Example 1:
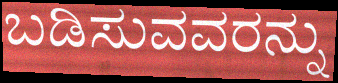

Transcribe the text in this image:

ಬಡಿಸುವವರನ್ನು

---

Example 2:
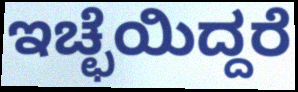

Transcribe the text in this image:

ಇಚ್ಛೆಯಿದ್ದರೆ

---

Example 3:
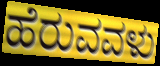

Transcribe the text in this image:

ಹೆರುವವಳು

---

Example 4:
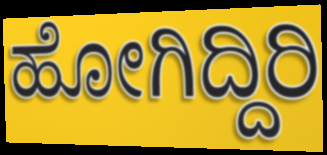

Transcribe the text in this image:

ಹೋಗಿದ್ದಿರಿ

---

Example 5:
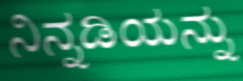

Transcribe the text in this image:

ನಿನ್ನಡಿಯನ್ನು